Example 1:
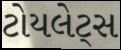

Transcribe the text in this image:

ટોયલેટ્સ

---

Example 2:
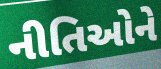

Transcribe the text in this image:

નીતિઓને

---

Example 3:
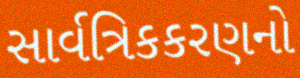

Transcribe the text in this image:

સાર્વત્રિકકરણનો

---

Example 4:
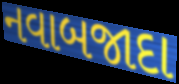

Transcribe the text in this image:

નવાબજાદા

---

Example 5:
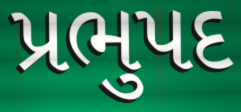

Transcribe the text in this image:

પ્રભુપદ